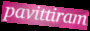
pavittiram